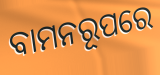
ବାମନରୂପରେ